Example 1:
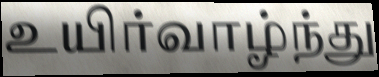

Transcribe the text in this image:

உயிர்வாழ்ந்து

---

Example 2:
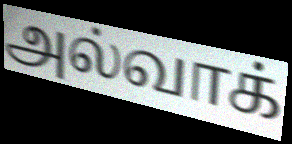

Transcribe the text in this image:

அல்வாக்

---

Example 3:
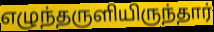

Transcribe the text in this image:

எழுந்தருளியிருந்தார்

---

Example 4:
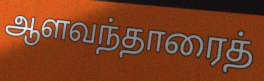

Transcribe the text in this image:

ஆளவந்தாரைத்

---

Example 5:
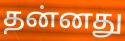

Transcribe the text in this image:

தன்னது